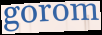
gorom